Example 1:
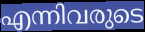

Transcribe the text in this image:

എന്നിവരുടെ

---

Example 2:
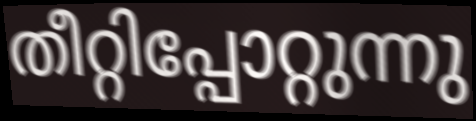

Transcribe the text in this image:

തീറ്റിപ്പോറ്റുന്നു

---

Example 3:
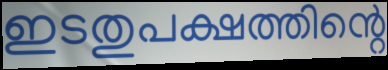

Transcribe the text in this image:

ഇടതുപക്ഷത്തിന്റെ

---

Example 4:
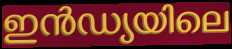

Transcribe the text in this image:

ഇൻഡ്യയിലെ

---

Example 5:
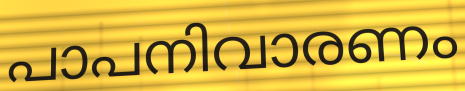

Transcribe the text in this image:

പാപനിവാരണം